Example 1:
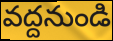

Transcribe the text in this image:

వద్దనుండి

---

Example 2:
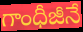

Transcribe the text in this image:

గాంధీజీనే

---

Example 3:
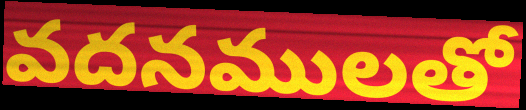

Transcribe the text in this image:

వదనములతో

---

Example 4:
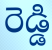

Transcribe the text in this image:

రెడ్డి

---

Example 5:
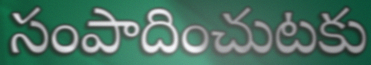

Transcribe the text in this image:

సంపాదించుటకు